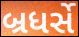
બ્રધર્સે